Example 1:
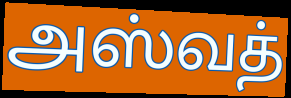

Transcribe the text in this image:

அஸ்வத்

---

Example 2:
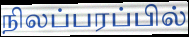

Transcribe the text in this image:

நிலப்பரப்பில்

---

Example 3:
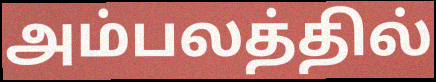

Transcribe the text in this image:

அம்பலத்தில்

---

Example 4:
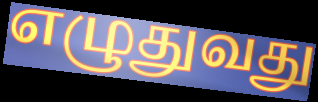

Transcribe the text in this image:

எழுதுவது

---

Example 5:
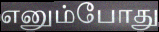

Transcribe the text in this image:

எனும்போது